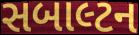
સબાલ્ટન